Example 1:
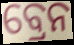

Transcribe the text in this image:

ବ୍ରେନ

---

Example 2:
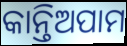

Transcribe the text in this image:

କାନ୍ତିଅପାମ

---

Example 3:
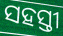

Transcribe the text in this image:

ସହସ୍ତୀ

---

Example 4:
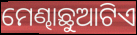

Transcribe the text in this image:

ମେଣ୍ଢାଛୁଆଟିଏ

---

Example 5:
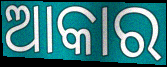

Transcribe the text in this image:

ଆକାର